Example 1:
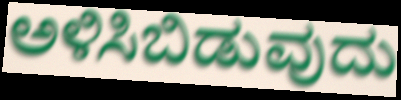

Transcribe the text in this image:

ಅಳಿಸಿಬಿಡುವುದು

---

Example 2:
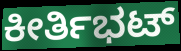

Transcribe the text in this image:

ಕೀರ್ತಿಭಟ್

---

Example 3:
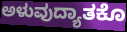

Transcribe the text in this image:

ಅಳುವುದ್ಯಾತಕೊ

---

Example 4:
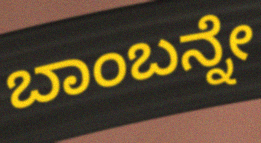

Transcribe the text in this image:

ಬಾಂಬನ್ನೇ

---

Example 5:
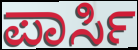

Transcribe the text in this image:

ಪಾರ್ಸಿ